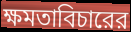
ক্ষমতাবিচারের